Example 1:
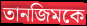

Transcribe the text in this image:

তানজিমকে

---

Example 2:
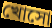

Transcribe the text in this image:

খোসো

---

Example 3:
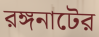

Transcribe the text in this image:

রঙ্গনাটের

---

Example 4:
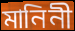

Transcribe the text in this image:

মানিনী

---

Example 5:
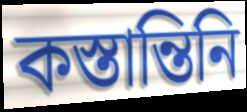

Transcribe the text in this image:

কস্তান্তিনি